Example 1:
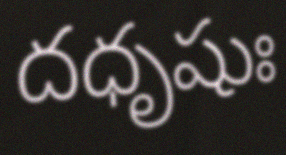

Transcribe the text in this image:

దధృషుః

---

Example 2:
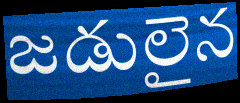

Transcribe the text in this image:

జడులైన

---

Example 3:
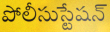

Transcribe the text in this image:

పోలీసుస్టేషన్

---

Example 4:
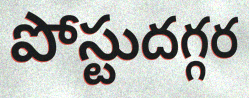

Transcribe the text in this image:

పోస్టుదగ్గర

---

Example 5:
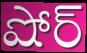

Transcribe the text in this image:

షోర్